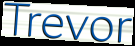
Trevor